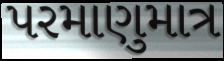
પરમાણુમાત્ર